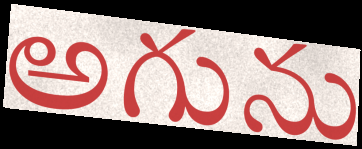
అగును